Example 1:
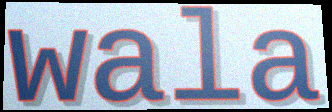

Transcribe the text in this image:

wala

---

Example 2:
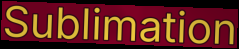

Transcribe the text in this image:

Sublimation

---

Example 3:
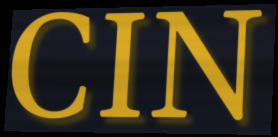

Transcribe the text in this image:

CIN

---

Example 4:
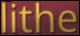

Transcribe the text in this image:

lithe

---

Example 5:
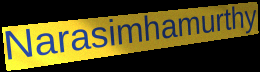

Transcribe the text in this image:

Narasimhamurthy